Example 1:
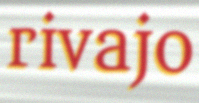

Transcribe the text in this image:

rivajo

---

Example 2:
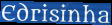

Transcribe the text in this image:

Edrisinha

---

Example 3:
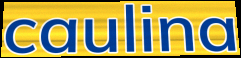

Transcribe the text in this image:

caulina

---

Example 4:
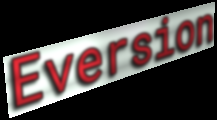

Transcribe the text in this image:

Eversion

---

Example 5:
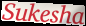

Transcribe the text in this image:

Sukesha